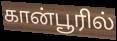
கான்பூரில்